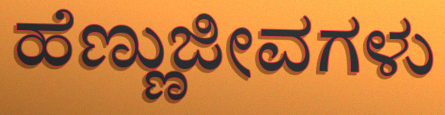
ಹೆಣ್ಣುಜೀವಗಳು